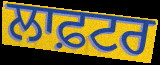
ਲਾਫ਼ਟਰ